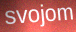
svojom